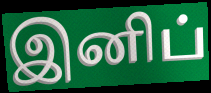
இனிப்